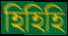
হিহিহি